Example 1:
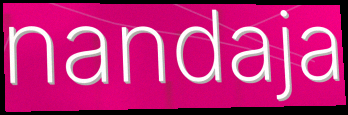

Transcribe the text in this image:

nandaja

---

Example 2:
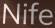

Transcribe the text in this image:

Nife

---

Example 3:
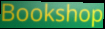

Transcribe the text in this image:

Bookshop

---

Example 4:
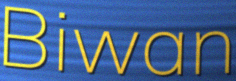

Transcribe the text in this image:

Biwan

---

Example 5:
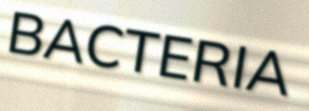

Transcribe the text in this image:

BACTERIA